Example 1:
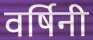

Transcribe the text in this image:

वर्षिनी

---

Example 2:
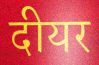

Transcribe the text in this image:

दीयर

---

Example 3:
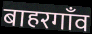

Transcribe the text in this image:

बाहरगाँव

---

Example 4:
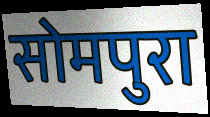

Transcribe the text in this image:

सोमपुरा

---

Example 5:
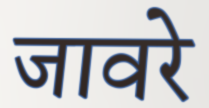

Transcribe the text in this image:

जावरे